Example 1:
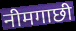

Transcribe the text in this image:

नीमगाछी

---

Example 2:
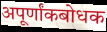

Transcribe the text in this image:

अपूर्णांकबोधक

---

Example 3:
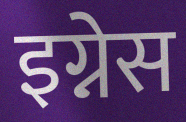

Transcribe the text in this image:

इग्नेस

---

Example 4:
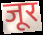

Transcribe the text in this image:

जूर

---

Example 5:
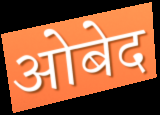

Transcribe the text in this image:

ओबेद